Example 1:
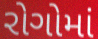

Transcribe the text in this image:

રોગોમાં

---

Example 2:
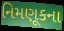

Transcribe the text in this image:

નિમણૂકના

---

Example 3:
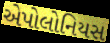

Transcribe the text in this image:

એપોલોનિયસ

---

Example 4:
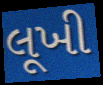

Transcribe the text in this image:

લૂખી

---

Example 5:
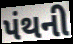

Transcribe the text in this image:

પંથની